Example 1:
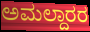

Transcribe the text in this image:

ಅಮಲ್ದಾರರ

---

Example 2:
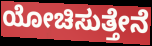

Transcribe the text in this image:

ಯೋಚಿಸುತ್ತೇನೆ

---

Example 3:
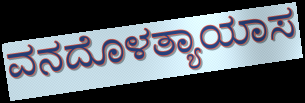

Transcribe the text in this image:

ವನದೊಳತ್ಯಾಯಾಸ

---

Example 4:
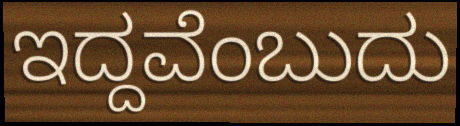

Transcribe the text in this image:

ಇದ್ದವೆಂಬುದು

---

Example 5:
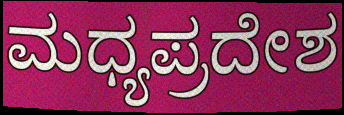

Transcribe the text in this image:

ಮಧ್ಯಪ್ರದೇಶ